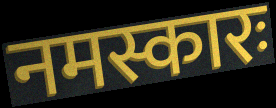
नमस्कारः